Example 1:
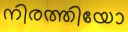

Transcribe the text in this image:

നിരത്തിയോ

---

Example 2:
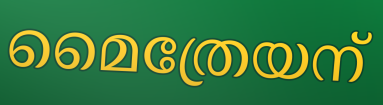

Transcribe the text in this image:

മൈത്രേയന്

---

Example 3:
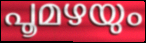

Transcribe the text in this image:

പൂമഴയും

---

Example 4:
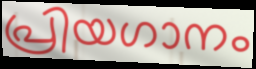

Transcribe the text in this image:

പ്രിയഗാനം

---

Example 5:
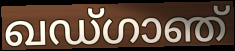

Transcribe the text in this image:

ഖഡ്ഗാഞ്